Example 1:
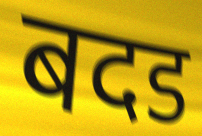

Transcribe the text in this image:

बदड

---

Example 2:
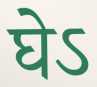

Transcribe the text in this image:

घेऽ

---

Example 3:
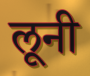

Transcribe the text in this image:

लूनी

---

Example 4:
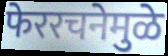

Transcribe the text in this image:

फेररचनेमुळे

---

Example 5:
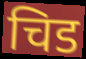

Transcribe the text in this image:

चिड